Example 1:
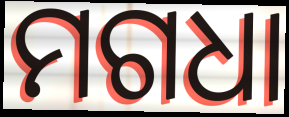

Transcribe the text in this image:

ମଗଧା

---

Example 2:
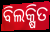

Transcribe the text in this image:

ବିଲକ୍ଷିତ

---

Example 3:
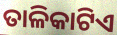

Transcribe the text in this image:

ତାଳିକାଟିଏ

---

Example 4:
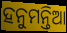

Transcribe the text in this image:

ହନୁମନ୍ତିଆ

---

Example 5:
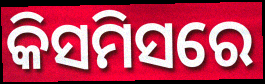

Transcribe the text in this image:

କିସମିସରେ